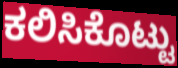
ಕಲಿಸಿಕೊಟ್ಟು